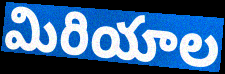
మిరియాల